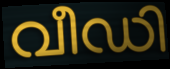
വീഡി